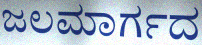
ಜಲಮಾರ್ಗದ